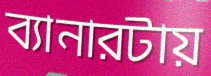
ব্যানারটায়